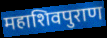
महाशिवपुराण